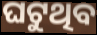
ଘଟୁଥିବ